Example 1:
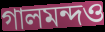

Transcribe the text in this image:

গালমন্দও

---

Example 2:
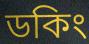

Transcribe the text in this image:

ডকিং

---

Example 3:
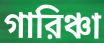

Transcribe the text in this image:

গারিঞ্চা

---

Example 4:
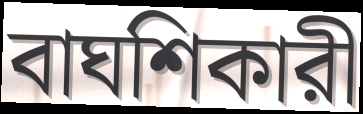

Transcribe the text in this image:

বাঘশিকারী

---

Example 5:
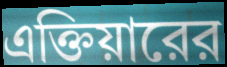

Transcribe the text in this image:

এক্তিয়ারের